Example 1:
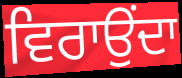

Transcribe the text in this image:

ਵਿਰਾਉਂਦਾ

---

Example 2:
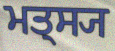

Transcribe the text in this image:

ਮਤ੍ਸ੍ਯ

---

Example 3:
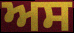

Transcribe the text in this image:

ਅਸ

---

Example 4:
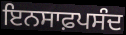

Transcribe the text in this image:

ਇਨਸਾਫ਼ਪਸੰਦ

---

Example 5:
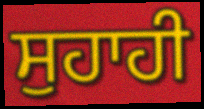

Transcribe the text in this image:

ਸੁਹਾਹੀ